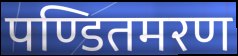
पण्डितमरण